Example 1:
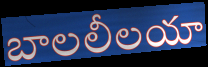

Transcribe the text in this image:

బాలలీలయా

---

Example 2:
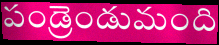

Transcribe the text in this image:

పండ్రెండుమంది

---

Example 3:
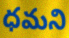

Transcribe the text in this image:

ధమని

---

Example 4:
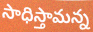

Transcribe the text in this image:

సాధిస్తామన్న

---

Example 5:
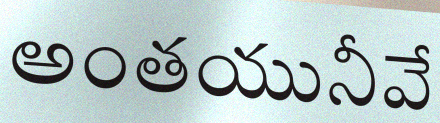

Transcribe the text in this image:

అంతయునీవే